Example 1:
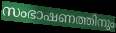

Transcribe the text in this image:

സംഭാഷണത്തിനും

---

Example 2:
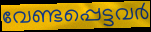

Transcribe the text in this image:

വേണ്ടപ്പെട്ടവർ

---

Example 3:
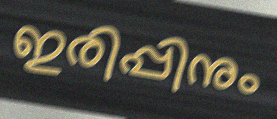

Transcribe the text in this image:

ഇരിപ്പിനും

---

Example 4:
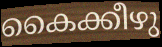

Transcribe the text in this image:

കൈക്കീഴു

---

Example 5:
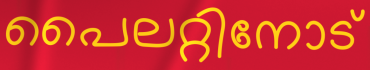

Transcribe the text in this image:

പൈലറ്റിനോട്